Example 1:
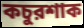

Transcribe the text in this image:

কচুরশাক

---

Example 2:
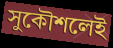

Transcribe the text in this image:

সুকৌশলেই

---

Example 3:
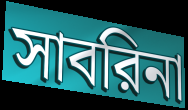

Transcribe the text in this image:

সাবরিনা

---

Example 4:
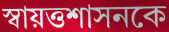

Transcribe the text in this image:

স্বায়ত্তশাসনকে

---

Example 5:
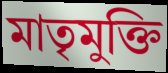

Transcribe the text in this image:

মাতৃমুক্তি